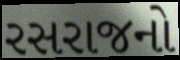
રસરાજનો